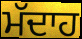
ਮੱਦਾਹ